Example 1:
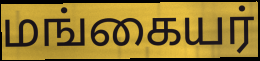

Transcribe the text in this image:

மங்கையர்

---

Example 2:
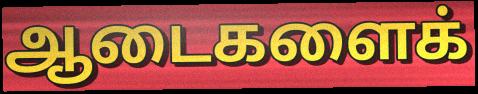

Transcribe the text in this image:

ஆடைகளைக்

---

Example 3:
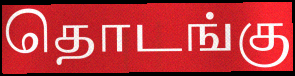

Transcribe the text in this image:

தொடங்கு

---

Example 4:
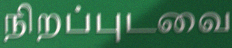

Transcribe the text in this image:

நிறப்புடவை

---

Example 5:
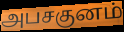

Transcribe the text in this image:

அபசகுனம்